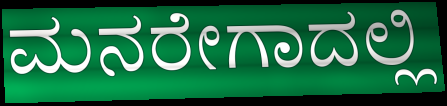
ಮನರೇಗಾದಲ್ಲಿ